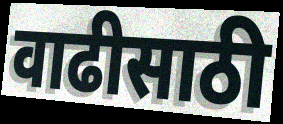
वाढीसाठी